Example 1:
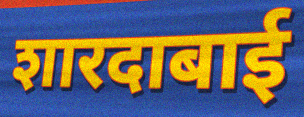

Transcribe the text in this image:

शारदाबाई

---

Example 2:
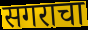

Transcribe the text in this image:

सगराचा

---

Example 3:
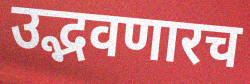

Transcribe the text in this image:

उद्भवणारच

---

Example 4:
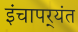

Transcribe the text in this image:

इंचापर्यंत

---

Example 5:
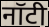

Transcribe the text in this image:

नॉटी